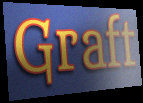
Graft